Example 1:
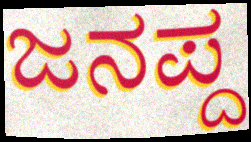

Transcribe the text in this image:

ಜನಪ್ದ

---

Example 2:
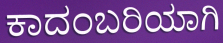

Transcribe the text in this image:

ಕಾದಂಬರಿಯಾಗಿ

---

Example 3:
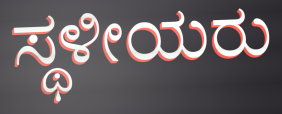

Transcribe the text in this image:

ಸ್ಥಳೀಯರು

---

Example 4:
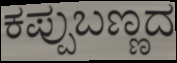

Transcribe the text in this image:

ಕಪ್ಪುಬಣ್ಣದ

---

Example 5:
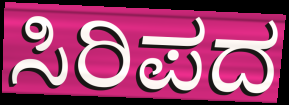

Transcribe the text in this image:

ಸಿರಿಪದ